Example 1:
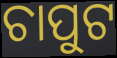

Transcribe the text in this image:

ଚାପୁଟ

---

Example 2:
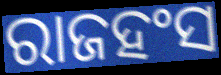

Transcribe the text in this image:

ରାଜହଂସ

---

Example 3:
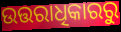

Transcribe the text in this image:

ଉତ୍ତରାଧିକାରରୁ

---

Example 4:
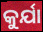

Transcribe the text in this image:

କୁର୍ଯା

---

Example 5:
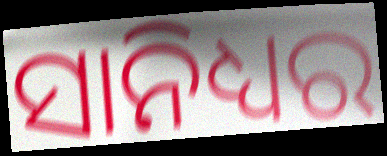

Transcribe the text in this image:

ସାନିଧ୍ୟର